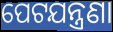
ପେଟଯନ୍ତ୍ରଣା